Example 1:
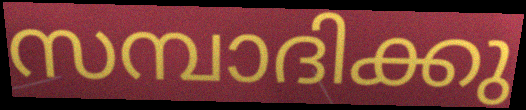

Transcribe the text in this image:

സമ്പാദിക്കു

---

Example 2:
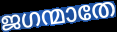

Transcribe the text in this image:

ജഗന്മാതേ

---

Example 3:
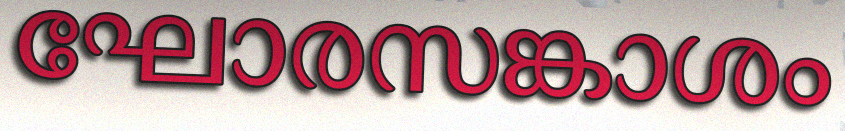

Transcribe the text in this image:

ഘോരസങ്കാശം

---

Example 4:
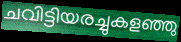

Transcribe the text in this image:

ചവിട്ടിയരച്ചുകളഞ്ഞു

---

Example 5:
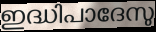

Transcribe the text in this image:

ഇദ്ധിപാദേസു